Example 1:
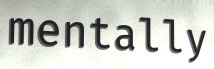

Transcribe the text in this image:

mentally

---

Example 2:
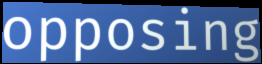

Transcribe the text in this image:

opposing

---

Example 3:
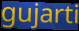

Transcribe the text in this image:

gujarti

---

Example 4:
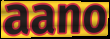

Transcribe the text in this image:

aano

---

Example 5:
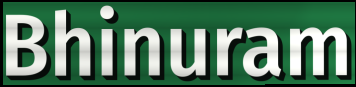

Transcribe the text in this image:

Bhinuram